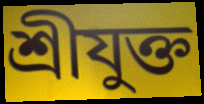
শ্রীযুক্ত